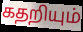
கதறியும்